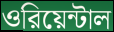
ওরিয়েন্টাল